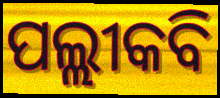
ପଲ୍ଲୀକବି